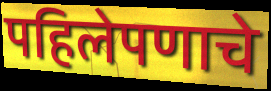
पहिलेपणाचे